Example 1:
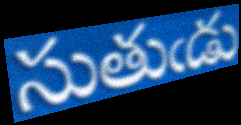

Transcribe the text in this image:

సుతుఁడు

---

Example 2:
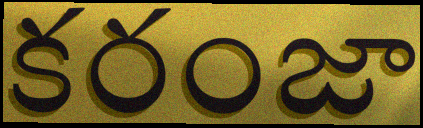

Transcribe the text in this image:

కరంజా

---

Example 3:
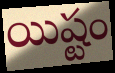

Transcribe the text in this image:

యిష్టం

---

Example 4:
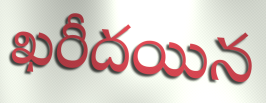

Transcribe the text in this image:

ఖరీదయిన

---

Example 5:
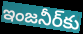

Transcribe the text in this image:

ఇంజనీర్‌కు